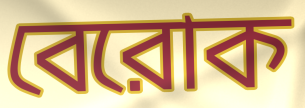
বেরোক